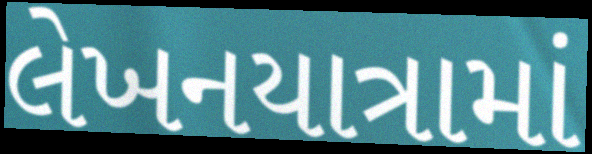
લેખનયાત્રામાં